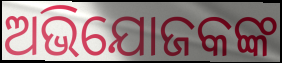
ଅଭିଯୋଜକଙ୍କ